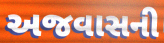
અજવાસની